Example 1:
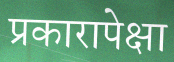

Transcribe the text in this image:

प्रकारापेक्षा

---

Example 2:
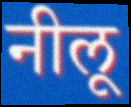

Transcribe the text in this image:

नीलू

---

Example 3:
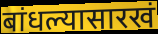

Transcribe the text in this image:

बांधल्यासारखं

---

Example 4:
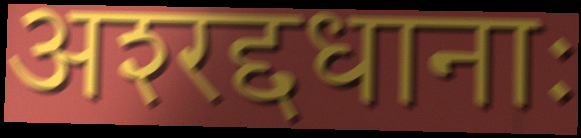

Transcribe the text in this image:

अश्रद्दधानाः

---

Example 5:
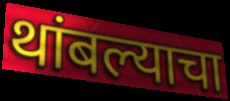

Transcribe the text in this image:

थांबल्याचा